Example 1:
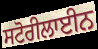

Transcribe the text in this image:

ਸਟੋਰੀਲਾਈਨ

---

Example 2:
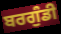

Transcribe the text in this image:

ਬਰਗੁੰਡੀ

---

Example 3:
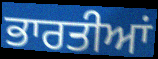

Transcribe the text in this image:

ਭਾਰਤੀਆਂ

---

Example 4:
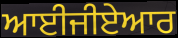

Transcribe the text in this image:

ਆਈਜੀਏਆਰ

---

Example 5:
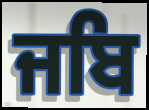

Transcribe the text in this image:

ਜਬਿ